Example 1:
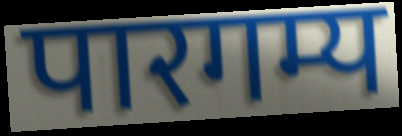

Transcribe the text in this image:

पारगम्य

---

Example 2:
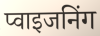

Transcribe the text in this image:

प्वाइजनिंग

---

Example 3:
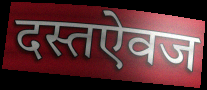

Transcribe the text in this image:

दस्तऐवज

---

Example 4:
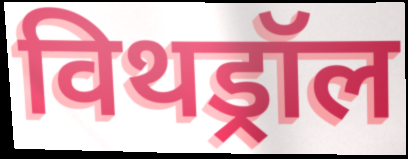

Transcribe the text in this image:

विथड्रॉल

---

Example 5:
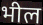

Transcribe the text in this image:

भील